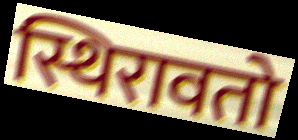
स्थिरावतो